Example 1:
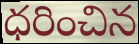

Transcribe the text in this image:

ధరించిన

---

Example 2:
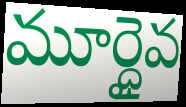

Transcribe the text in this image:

మూర్ధైవ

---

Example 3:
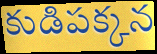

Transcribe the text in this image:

కుడిపక్కన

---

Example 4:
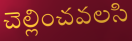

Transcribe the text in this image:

చెల్లించవలసి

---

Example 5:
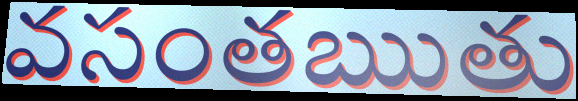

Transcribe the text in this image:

వసంతఋతు